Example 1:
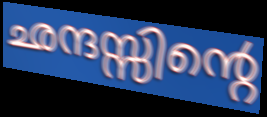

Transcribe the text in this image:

ഛന്ദസ്സിന്റെ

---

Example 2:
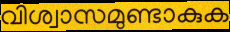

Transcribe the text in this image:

വിശ്വാസമുണ്ടാകുക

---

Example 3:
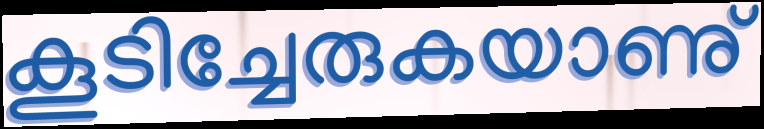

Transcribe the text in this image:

കൂടിച്ചേരുകയാണു്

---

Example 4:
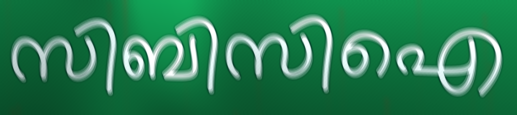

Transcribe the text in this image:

സിബിസിഐ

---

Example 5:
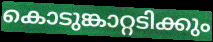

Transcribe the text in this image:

കൊടുങ്കാറ്റടിക്കും